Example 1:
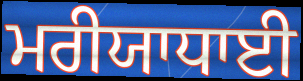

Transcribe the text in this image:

ਮਰੀਯਾਧਾਈ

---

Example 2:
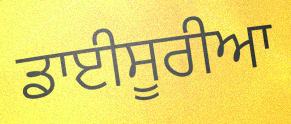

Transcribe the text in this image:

ਡਾਈਸੂਰੀਆ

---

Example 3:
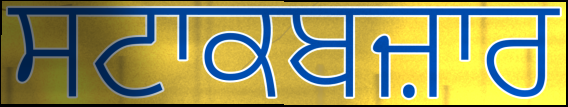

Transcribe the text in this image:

ਸਟਾਕਬਜ਼ਾਰ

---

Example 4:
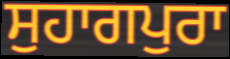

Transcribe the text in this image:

ਸੁਹਾਗਪੁਰਾ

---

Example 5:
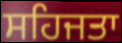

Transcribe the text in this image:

ਸਹਿਜਤਾ